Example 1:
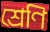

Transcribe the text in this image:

শ্রেণি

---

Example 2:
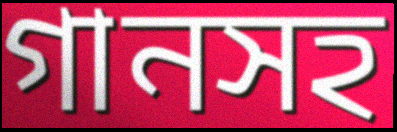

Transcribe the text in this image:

গানসহ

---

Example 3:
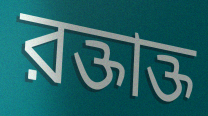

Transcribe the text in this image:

রক্তাক্ত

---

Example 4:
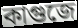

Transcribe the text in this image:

কাগুজে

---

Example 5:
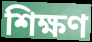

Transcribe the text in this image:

শিক্ষণ